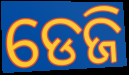
ଡେଜି